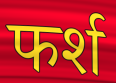
फर्श